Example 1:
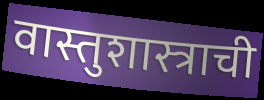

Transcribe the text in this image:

वास्तुशास्त्राची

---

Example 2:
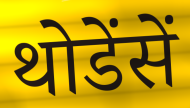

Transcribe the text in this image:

थोडेंसें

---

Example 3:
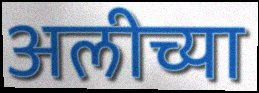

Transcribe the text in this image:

अलीच्या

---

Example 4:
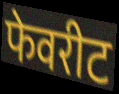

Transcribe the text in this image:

फेवरीट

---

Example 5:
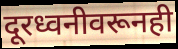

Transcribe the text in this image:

दूरध्वनीवरूनही